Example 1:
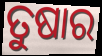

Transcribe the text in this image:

ତୁଷାର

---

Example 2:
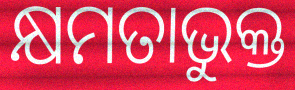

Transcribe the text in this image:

କ୍ଷମତାଭୁକ୍ତ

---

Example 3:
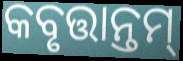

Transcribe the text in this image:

କବୃତ୍ତାନ୍ତମ୍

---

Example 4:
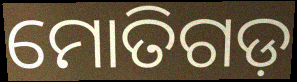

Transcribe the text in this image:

ମୋତିଗଡ଼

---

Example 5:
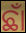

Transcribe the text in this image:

ଛାଁ